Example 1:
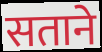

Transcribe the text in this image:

सताने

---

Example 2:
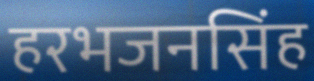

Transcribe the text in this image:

हरभजनसिंह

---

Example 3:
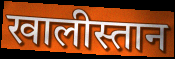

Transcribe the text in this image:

खालीस्तान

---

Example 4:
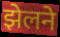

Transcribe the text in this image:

झेलने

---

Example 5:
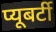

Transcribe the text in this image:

प्यूबर्टी